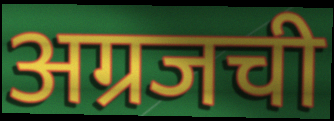
अग्रजची